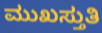
ಮುಖಸ್ತುತಿ